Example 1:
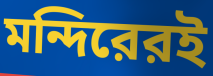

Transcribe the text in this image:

মন্দিরেরই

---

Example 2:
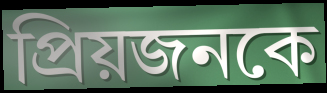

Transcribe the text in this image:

প্রিয়জনকে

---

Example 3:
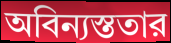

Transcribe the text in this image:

অবিন্যস্ততার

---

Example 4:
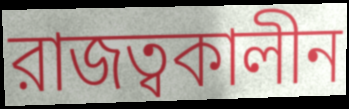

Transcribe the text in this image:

রাজত্বকালীন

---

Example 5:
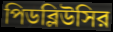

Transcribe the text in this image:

পিডব্লিউসির